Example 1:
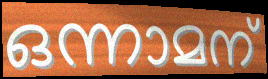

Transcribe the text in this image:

ഒന്നാമന്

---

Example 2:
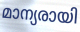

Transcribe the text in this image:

മാന്യരായി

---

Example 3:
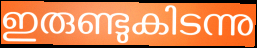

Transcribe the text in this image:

ഇരുണ്ടുകിടന്നു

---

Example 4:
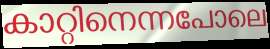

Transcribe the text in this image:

കാറ്റിനെന്നപോലെ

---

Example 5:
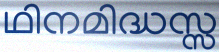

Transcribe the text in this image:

ഥിനമിദ്ധസ്സ